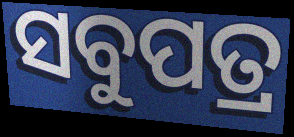
ସବୁପତ୍ର